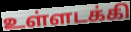
உள்ளடக்கி